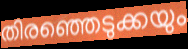
തിരഞ്ഞെടുക്കയും